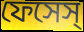
ফেসেস্